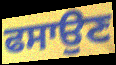
ਫਸਾਉਣ